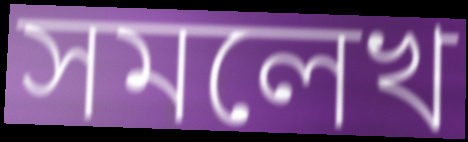
সমলেখ